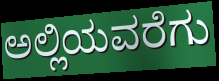
ಅಲ್ಲಿಯವರೆಗು